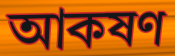
আকষণ